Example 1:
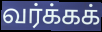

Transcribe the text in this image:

வர்க்கக்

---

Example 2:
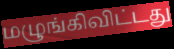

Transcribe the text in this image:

மழுங்கிவிட்டது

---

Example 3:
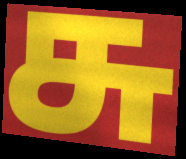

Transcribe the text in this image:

சு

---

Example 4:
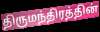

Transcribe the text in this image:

திருமந்திரத்தின்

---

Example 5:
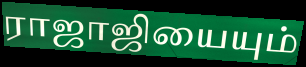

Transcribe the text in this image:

ராஜாஜியையும்